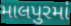
માલપુરમાં